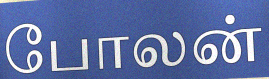
போலன்